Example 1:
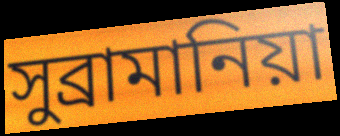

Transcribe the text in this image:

সুব্রামানিয়া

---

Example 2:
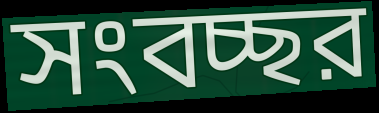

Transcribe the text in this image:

সংবচ্ছর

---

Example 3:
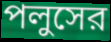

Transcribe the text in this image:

পলুসের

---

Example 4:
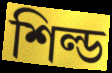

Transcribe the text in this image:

শিল্ড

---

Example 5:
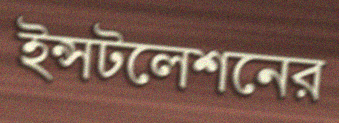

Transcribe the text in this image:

ইন্সটলেশনের